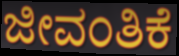
ಜೀವಂತಿಕೆ